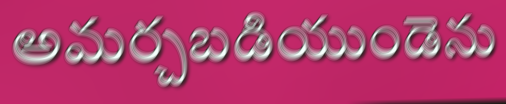
అమర్చబడియుండెను